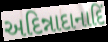
અદિન્નાદાનાદિં